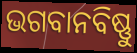
ଭଗବାନବିଷ୍ଣୁ